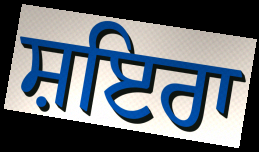
ਸ਼ਇਰਾ